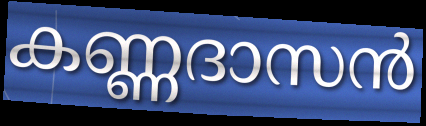
കണ്ണദാസൻ